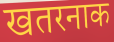
खतरनाक